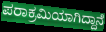
ಪರಾಕ್ರಮಿಯಾಗಿದ್ದಾನೆ